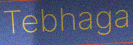
Tebhaga